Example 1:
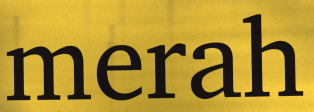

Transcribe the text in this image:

merah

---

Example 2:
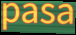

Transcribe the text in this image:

pasa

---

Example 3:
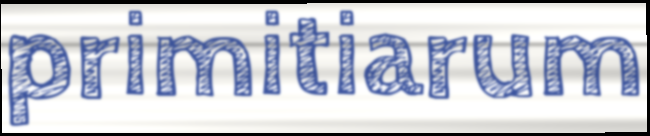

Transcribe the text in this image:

primitiarum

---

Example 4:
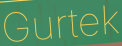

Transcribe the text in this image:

Gurtek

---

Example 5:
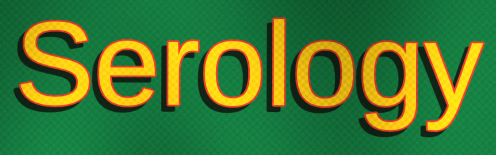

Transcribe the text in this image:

Serology